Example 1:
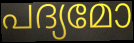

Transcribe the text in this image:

പദ്യമോ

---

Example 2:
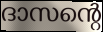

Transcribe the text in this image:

ദാസന്റെ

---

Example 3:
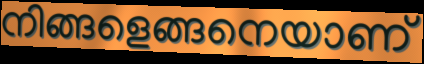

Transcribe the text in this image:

നിങ്ങളെങ്ങനെയാണ്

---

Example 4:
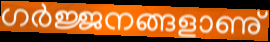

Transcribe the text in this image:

ഗർജ്ജനങ്ങളാണു്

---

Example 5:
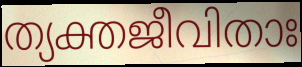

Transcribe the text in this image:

ത്യക്തജീവിതാഃ